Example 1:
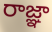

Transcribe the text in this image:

రాజ్ఞా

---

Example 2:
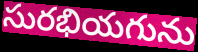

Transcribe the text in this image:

సురభియగును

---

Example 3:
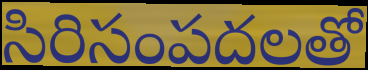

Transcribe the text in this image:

సిరిసంపదలతో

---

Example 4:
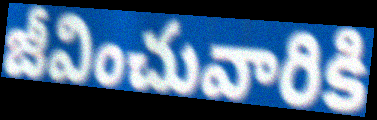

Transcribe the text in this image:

జీవించువారికి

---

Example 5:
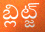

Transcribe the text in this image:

బ్లిట్జ్